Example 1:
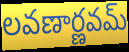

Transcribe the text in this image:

లవణార్ణవమ్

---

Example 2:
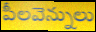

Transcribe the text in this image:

పీలవెన్నులు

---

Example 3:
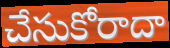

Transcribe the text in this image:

చేసుకోరాదా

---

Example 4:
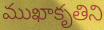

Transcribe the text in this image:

ముఖాకృతిని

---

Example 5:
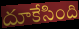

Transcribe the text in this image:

దూకేసింది